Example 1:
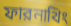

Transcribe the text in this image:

ফারনাথিং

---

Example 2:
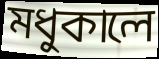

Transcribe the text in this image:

মধুকালে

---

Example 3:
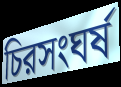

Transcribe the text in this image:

চিরসংঘর্ষ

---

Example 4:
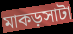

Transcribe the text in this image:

মাকড়সাটা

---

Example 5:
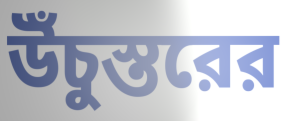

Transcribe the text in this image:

উঁচুস্তরের